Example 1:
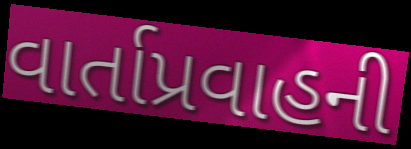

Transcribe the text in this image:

વાર્તાપ્રવાહની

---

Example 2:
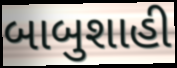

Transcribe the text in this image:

બાબુશાહી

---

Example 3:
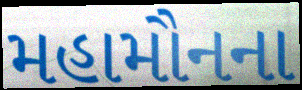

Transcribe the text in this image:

મહામૌનના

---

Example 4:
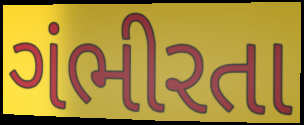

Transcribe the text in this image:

ગંભીરતા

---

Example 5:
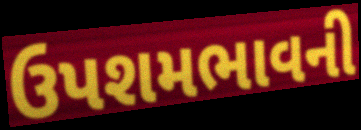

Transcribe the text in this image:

ઉપશમભાવની